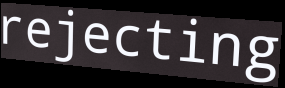
rejecting